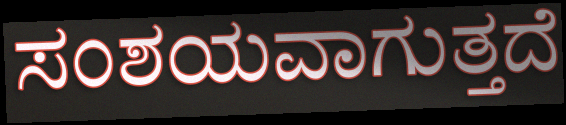
ಸಂಶಯವಾಗುತ್ತದೆ